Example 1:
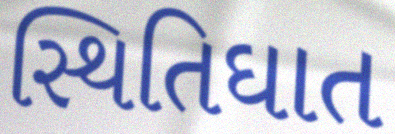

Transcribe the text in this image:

સ્થિતિઘાત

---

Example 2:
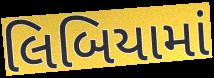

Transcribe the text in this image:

લિબિયામાં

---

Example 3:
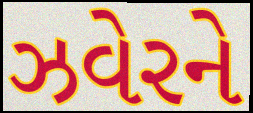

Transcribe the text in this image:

ઝવેરને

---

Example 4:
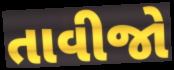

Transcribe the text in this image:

તાવીજો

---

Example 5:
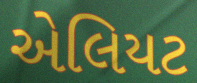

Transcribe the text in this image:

એલિયટ